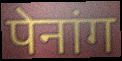
पेनांग